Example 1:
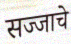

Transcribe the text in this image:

सज्जाचे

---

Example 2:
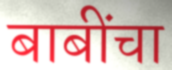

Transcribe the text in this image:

बाबींचा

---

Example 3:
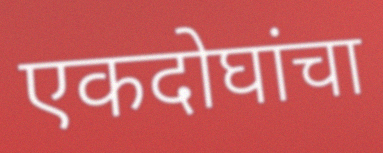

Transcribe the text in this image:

एकदोघांचा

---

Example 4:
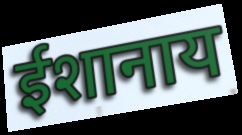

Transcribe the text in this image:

ईशानाय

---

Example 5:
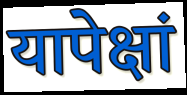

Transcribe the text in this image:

यापेक्षां